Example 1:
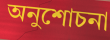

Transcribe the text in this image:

অনুশোচনা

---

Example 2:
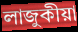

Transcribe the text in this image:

লাজুকীয়া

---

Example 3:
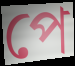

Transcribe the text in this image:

পে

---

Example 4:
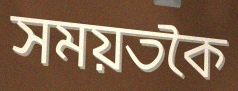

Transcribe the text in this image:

সময়তকৈ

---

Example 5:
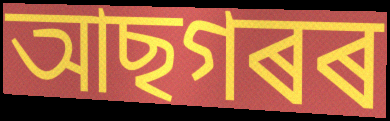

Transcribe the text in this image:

আছগৰৰ